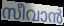
സീവാൻ